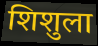
शिशुला